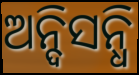
ଅନ୍ଦିସନ୍ଧି